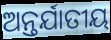
ଅନ୍ତର୍ଯାତୀୟ